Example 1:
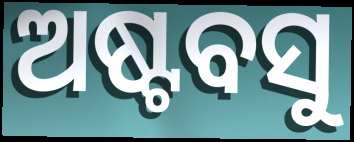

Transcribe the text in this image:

ଅଷ୍ଟବସୁ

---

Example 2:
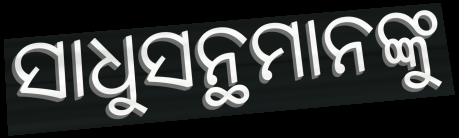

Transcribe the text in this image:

ସାଧୁସନ୍ଥମାନଙ୍କୁ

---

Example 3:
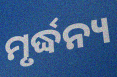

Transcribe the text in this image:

ମୃର୍ଦ୍ଧନ୍ୟ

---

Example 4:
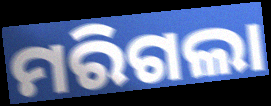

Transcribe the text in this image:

ମରିଗଲା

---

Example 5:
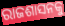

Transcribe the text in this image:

ରାଜଶାସନକୁ